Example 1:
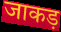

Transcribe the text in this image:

जाकड़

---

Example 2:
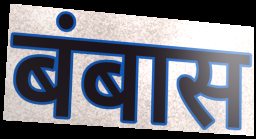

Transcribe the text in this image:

बंबास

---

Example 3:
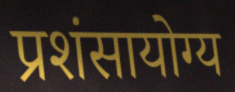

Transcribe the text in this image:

प्रशंसायोग्य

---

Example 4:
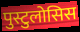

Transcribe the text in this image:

पुस्टुलोसिस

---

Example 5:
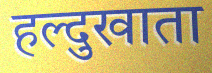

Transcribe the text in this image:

हल्दुखाता